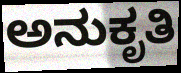
ಅನುಕೃತಿ